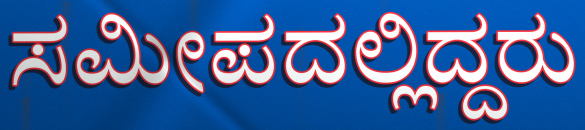
ಸಮೀಪದಲ್ಲಿದ್ದರು